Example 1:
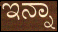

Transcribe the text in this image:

ಇನ್ನಾ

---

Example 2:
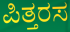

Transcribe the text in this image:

ಪಿತ್ತರಸ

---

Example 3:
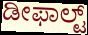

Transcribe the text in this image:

ಡೀಫಾಲ್ಟ್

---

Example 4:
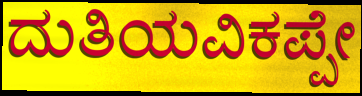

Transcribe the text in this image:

ದುತಿಯವಿಕಪ್ಪೇ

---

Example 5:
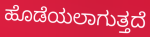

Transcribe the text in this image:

ಹೊಡೆಯಲಾಗುತ್ತದೆ